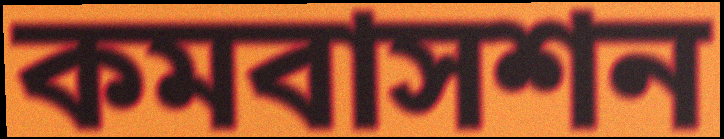
কমবাসশন